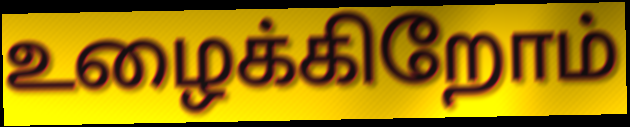
உழைக்கிறோம்